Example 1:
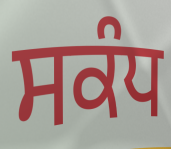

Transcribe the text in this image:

ਸਕੰਧ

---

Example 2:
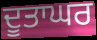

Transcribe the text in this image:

ਦੂਤਾਘਰ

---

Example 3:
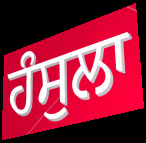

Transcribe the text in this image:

ਹੰਸੁਲਾ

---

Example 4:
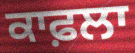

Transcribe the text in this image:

ਕਾਫ਼ਲਾ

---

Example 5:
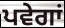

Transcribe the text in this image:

ਪਵੇਗਾਂ